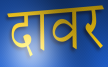
दावर